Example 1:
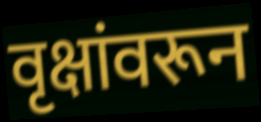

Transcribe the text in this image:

वृक्षांवरून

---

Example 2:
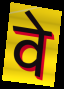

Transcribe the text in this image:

वे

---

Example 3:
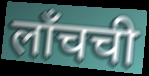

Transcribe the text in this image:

लाँचची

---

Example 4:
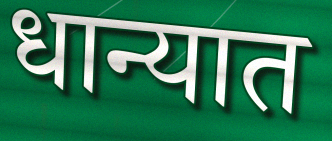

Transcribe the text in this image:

धान्यात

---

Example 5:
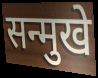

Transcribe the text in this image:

सन्मुखे